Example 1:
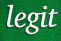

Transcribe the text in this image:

legit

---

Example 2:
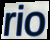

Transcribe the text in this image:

rio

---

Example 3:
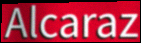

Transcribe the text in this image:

Alcaraz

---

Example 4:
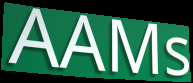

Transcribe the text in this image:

AAMs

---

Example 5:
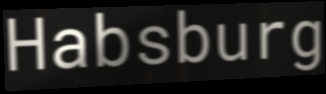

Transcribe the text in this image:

Habsburg